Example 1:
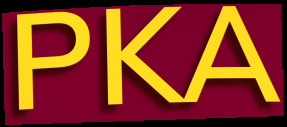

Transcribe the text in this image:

PKA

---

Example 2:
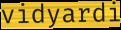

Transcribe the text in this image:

vidyardi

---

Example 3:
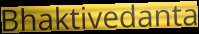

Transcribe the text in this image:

Bhaktivedanta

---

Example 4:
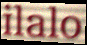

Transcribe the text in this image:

ilalo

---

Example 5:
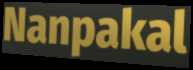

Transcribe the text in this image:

Nanpakal